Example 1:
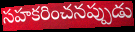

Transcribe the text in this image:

సహకరించనప్పుడు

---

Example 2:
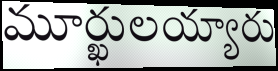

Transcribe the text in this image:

మూర్ఖులయ్యారు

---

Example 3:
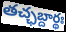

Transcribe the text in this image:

తచ్ఛబ్దార్థః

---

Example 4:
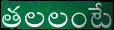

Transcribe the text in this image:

తలలంటే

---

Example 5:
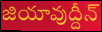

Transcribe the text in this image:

జియావుద్దీన్